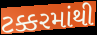
ટક્કરમાંથી